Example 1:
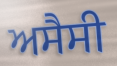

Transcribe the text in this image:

ਅਸੈਸੀ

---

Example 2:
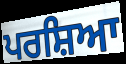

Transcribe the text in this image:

ਪਰਸ਼ਿਆ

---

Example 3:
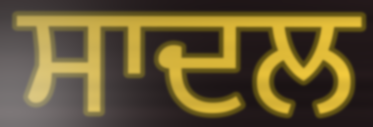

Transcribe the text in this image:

ਸਾਦਲ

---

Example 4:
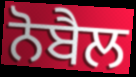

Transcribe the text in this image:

ਨੋਬੈਲ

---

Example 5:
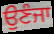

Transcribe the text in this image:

ਉਣੰਜਾ